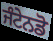
ਜੰਟੇਨਡੋ